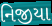
નિજીયા